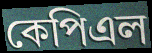
কেপিএল